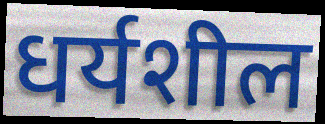
धर्यशील